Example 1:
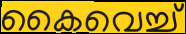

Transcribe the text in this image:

കൈവെച്ച്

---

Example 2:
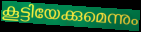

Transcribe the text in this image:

കൂട്ടിയേക്കുമെന്നും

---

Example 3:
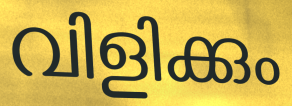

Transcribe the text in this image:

വിളിക്കും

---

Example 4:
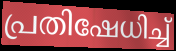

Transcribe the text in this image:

പ്രതിഷേധിച്ച്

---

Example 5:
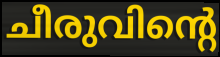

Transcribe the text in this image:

ചീരുവിന്റെ